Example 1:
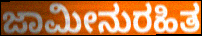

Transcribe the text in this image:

ಜಾಮೀನುರಹಿತ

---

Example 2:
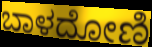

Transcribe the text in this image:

ಬಾಳದೋಣಿ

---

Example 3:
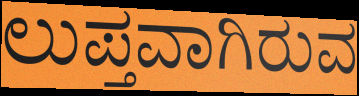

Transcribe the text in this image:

ಲುಪ್ತವಾಗಿರುವ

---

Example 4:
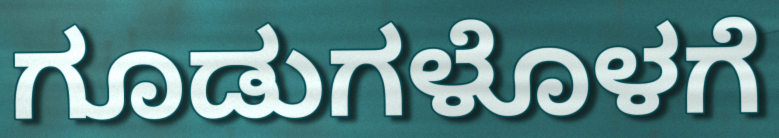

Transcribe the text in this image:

ಗೂಡುಗಳೊಳಗೆ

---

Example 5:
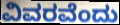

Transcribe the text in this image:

ವಿವರವೆಂದು